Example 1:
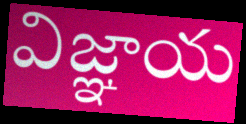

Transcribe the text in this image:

విజ్ఞాయ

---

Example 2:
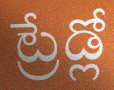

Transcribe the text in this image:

ట్రేడ్లో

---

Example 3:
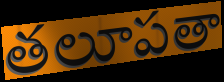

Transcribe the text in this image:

తలూపతా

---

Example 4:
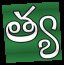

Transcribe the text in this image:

త్య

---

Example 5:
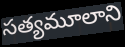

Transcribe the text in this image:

సత్యమూలాని